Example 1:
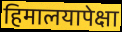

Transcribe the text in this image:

हिमालयापेक्षा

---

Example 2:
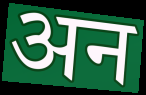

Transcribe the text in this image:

अन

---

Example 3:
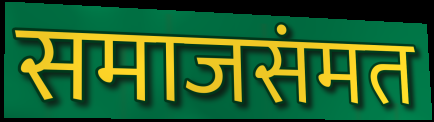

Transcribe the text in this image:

समाजसंमत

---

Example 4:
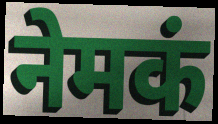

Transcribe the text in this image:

नेमकं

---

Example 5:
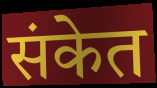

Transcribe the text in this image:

संकेत